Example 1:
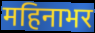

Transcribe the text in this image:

महिनाभर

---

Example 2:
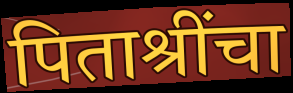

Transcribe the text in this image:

पिताश्रींचा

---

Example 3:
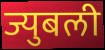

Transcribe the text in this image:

ज्युबली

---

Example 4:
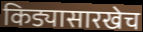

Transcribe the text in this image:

किड्यासारखेच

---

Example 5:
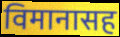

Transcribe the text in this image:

विमानासह